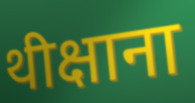
थीक्षाना